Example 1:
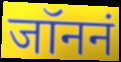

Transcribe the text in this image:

जॉननं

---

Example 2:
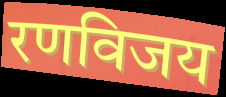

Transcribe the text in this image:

रणविजय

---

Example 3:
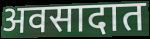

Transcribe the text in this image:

अवसादात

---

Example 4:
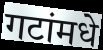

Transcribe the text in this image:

गटांमधे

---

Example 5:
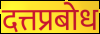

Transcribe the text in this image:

दत्तप्रबोध